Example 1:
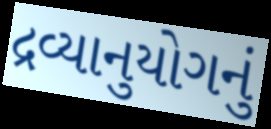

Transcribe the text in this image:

દ્રવ્યાનુયોગનું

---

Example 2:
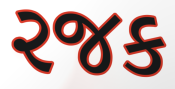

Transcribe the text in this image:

રજક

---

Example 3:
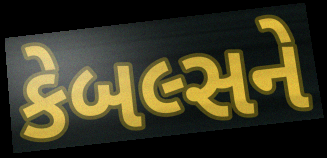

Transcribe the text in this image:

કેબલ્સને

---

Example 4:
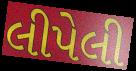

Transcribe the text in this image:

લીપેલી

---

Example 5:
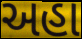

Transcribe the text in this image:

અહા